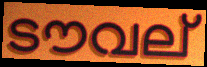
ടൗവല്